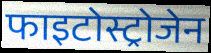
फाइटोस्ट्रोजेन